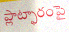
ప్లాట్ఫారంపై